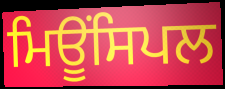
ਮਿਊਂਸਿਪਲ